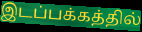
இடப்பக்கத்தில்